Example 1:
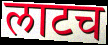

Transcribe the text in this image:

लाटच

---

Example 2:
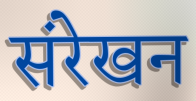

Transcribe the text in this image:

संरेखन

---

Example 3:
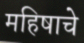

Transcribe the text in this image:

महिषाचे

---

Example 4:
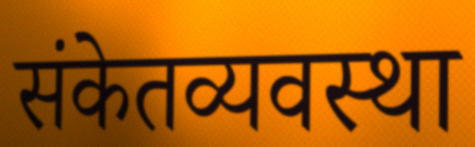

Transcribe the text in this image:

संकेतव्यवस्था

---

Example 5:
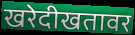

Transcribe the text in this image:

खरेदीखतावर